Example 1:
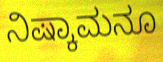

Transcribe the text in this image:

ನಿಷ್ಕಾಮನೂ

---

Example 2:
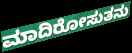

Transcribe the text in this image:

ಮಾದಿರೋಸುತನು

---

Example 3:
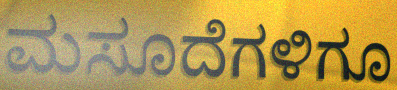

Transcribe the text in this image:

ಮಸೂದೆಗಳಿಗೂ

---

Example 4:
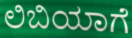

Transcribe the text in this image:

ಲಿಬಿಯಾಗೆ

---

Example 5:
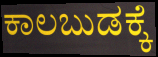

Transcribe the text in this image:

ಕಾಲಬುಡಕ್ಕೆ